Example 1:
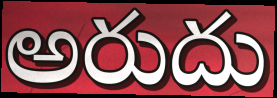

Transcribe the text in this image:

అరుదు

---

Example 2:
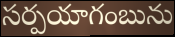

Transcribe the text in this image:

సర్పయాగంబును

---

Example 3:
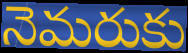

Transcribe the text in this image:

నెమరుకు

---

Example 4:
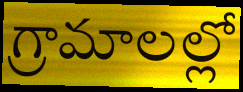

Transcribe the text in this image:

గ్రామాలల్లో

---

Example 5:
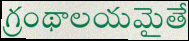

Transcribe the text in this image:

గ్రంథాలయమైతే